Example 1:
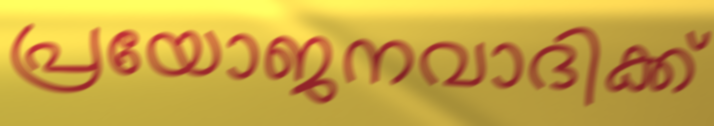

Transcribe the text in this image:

പ്രയോജനവാദിക്ക്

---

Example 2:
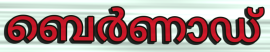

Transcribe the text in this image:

ബെർണാഡ്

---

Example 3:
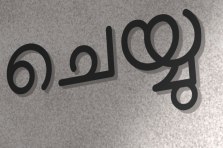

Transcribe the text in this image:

ചെയ്യു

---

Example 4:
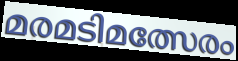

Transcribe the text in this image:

മരമടിമത്സേരം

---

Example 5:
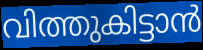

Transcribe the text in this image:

വിത്തുകിട്ടാൻ